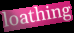
loathing